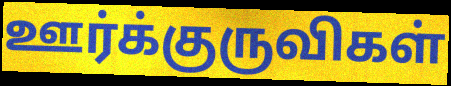
ஊர்க்குருவிகள்